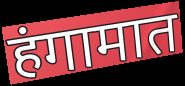
हंगामात